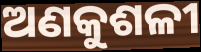
ଅଣକୁଶଳୀ